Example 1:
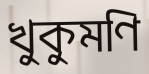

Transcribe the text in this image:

খুকুমণি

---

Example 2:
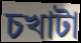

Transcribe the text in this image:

চখাটা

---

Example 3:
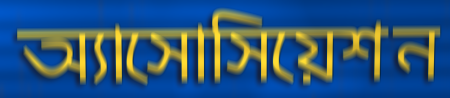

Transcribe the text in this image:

অ্যাসোসিয়েশন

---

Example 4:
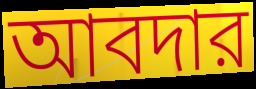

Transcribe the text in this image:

আবদার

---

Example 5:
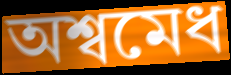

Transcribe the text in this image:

অশ্বমেধ